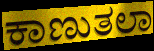
ಕಾಣುತಲಾ